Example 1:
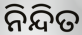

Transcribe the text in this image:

ନିନ୍ଦିତ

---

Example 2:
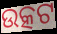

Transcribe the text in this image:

ଉତ୍କଟ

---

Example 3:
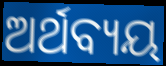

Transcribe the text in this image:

ଅର୍ଥବ୍ୟୟ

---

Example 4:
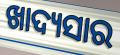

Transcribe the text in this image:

ଖାଦ୍ୟସାର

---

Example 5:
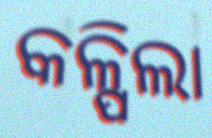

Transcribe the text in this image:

କଳ୍ପିଲା